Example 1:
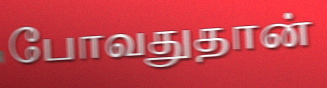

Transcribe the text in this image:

போவதுதான்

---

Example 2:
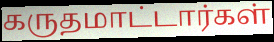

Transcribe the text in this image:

கருதமாட்டார்கள்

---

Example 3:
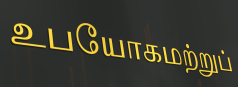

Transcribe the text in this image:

உபயோகமற்றுப்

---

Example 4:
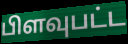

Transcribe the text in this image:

பிளவுபட்ட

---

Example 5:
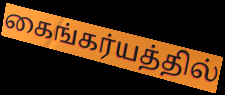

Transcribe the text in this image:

கைங்கர்யத்தில்